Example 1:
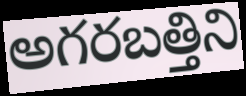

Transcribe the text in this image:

అగరబత్తిని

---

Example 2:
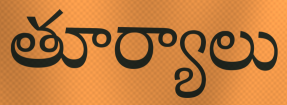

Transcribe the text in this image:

తూర్యాలు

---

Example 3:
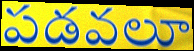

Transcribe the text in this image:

పడవలూ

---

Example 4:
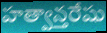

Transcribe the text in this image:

హత్వాన్తరేషు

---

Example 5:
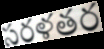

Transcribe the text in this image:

సరళతర